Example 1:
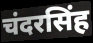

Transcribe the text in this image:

चंदरसिंह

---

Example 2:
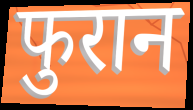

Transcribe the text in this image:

फुरान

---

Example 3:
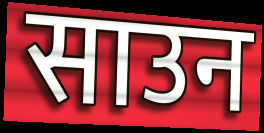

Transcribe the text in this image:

साउन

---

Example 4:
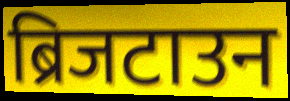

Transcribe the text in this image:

ब्रिजटाउन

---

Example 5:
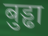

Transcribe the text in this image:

बुड्ढा